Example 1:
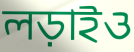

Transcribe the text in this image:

লড়াইও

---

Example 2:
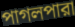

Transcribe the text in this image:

পাগলপারা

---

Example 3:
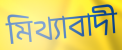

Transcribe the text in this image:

মিথ্যাবাদী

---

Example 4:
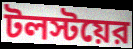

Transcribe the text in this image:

টলস্টয়ের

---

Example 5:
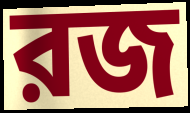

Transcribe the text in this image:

রজ